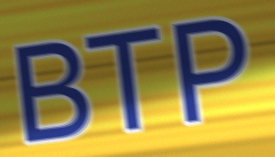
BTP